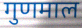
गुणमाल